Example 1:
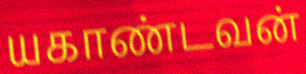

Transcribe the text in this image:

யகாண்டவன்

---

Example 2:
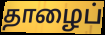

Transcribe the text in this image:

தாழைப்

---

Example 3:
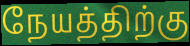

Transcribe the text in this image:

நேயத்திற்கு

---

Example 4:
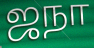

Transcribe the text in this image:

ஜநா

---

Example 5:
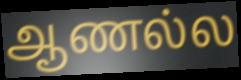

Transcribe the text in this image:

ஆணல்ல